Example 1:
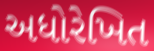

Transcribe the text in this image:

અધોરેખિત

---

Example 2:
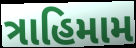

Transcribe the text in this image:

ત્રાહિમામ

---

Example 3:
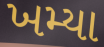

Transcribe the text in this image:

ખમ્યા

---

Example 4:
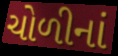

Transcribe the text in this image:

ચોળીનાં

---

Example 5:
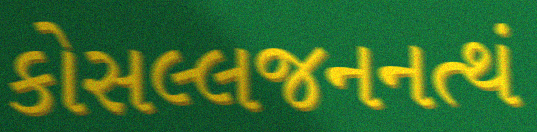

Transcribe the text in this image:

કોસલ્લજનનત્થં